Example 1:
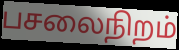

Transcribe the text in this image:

பசலைநிறம்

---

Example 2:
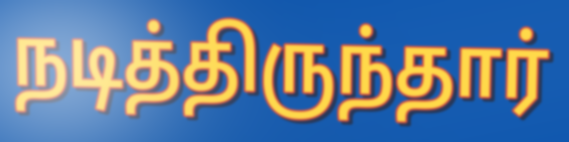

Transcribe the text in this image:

நடித்திருந்தார்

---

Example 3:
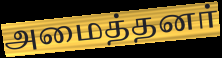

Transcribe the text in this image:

அமைத்தனர்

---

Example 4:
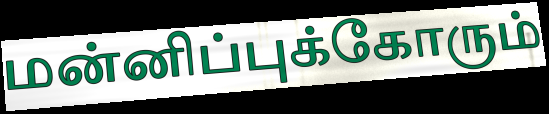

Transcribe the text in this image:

மன்னிப்புக்கோரும்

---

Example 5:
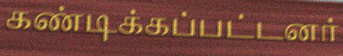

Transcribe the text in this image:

கண்டிக்கப்பட்டனர்